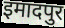
इमादपुर